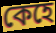
কেহে